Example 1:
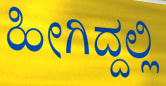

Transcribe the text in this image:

ಹೀಗಿದ್ದಲ್ಲಿ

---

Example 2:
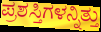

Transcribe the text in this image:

ಪ್ರಶಸ್ತಿಗಳನ್ನಿತ್ತು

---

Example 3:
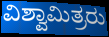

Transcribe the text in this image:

ವಿಶ್ವಾಮಿತ್ರರು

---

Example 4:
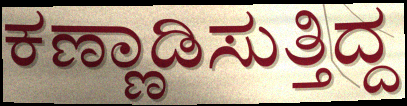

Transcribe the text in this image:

ಕಣ್ಣಾಡಿಸುತ್ತಿದ್ದ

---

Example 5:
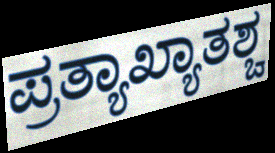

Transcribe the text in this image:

ಪ್ರತ್ಯಾಖ್ಯಾತಶ್ಚ